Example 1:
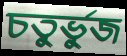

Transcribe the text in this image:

চতুর্ভুজ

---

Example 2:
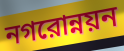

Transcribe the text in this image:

নগরোন্নয়ন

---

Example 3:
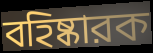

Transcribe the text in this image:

বহিষ্কারক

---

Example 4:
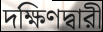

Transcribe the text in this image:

দক্ষিণদ্বারী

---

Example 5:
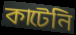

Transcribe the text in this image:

কাটেনি